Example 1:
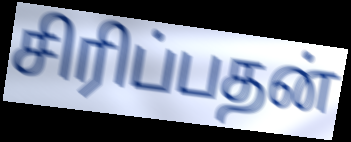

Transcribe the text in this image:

சிரிப்பதன்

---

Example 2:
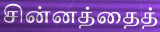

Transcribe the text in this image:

சின்னத்தைத்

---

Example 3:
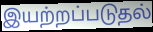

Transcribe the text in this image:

இயற்றப்படுதல்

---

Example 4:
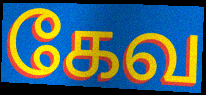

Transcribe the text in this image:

கேவ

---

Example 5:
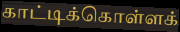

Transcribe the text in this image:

காட்டிக்கொள்ளக்